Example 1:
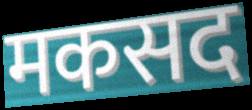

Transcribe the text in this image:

मकसद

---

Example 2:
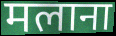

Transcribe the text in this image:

मलाना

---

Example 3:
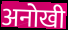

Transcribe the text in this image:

अनोखी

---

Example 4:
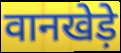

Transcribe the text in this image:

वानखेड़े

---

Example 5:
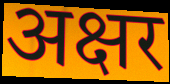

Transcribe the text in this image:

अक्षर